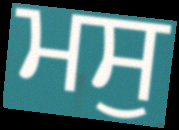
ਮਸੁ